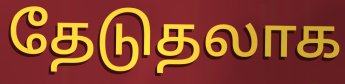
தேடுதலாக